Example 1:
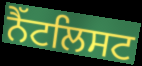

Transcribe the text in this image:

ਨੈੱਟਲਿਸਟ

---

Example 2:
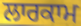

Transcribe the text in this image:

ਲਾਰਕਾਮ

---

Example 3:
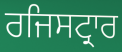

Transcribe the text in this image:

ਰਜਿਸਟ੍ਰਾਰ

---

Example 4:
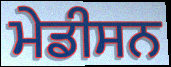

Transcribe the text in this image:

ਮੇਡੀਸਨ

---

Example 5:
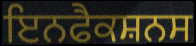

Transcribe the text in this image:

ਇਨਫੈਕਸ਼ਨਸ